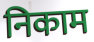
निकाम